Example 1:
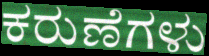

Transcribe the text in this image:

ಕರುಣೆಗಳು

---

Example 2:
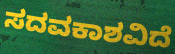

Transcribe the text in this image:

ಸದವಕಾಶವಿದೆ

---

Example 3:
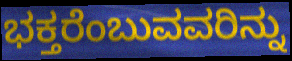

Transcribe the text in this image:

ಭಕ್ತರೆಂಬುವವರಿನ್ನು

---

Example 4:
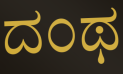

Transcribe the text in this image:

ದಂಥ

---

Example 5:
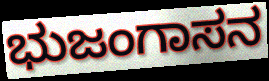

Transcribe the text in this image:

ಭುಜಂಗಾಸನ